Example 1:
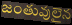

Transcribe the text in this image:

జంతువులైన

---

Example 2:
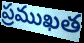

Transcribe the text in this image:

ప్రముఖత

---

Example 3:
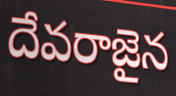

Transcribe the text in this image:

దేవరాజైన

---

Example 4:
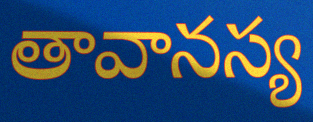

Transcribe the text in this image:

తావానస్య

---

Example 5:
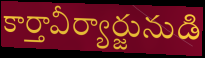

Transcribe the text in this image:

కార్తావీర్యార్జునుడి